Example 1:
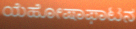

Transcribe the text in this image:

ಯೆಹೋಷಾಫಾಟನ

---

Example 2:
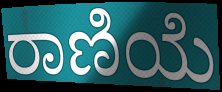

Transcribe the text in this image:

ರಾಣಿಯೆ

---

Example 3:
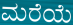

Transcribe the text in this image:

ಮರೆಯೆ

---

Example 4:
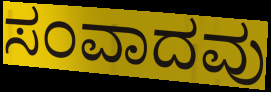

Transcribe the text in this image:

ಸಂವಾದವು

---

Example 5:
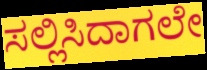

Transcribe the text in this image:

ಸಲ್ಲಿಸಿದಾಗಲೇ